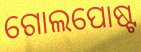
ଗୋଲପୋଷ୍ଟ